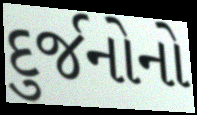
દુર્જનોનો